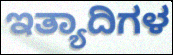
ಇತ್ಯಾದಿಗಳ